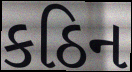
કઠિન